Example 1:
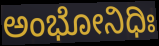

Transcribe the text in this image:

ಅಂಭೋನಿಧಿಃ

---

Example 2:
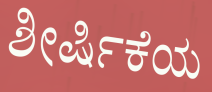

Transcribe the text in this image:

ಶೀರ್ಷಿಕೆಯ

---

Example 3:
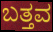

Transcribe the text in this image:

ಬತ್ತವ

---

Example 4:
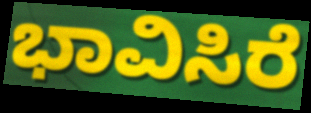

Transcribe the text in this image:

ಭಾವಿಸಿರೆ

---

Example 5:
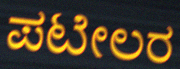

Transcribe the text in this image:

ಪಟೇಲರ